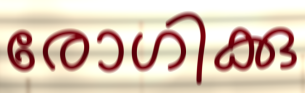
രോഗിക്കു